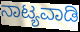
ನಾಟ್ಯವಾಡಿ